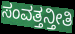
ಸಂವತ್ತನ್ತೀತಿ